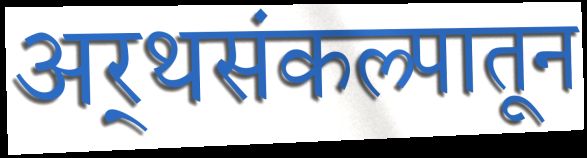
अर्थसंकल्पातून